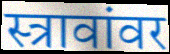
स्त्रावांवर